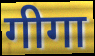
गीगा